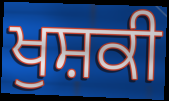
ਖੁਸ਼ਕੀ